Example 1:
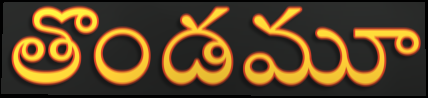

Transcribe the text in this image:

తొండమూ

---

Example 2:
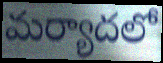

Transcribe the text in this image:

మర్యాదలో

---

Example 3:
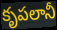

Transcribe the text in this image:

కృపలానీ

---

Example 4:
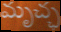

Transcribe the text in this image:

మృచ్ఛ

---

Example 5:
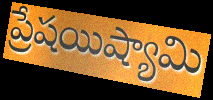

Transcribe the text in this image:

ప్రేషయిష్యామి